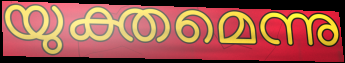
യുക്തമെന്നു